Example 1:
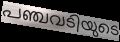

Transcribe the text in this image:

പഞ്ചവടിയുടെ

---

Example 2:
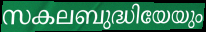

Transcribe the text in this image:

സകലബുദ്ധിയേയും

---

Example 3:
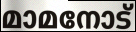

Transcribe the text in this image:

മാമനോട്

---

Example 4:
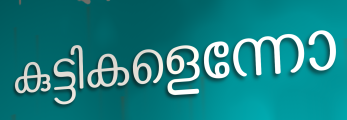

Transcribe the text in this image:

കുട്ടികളെന്നോ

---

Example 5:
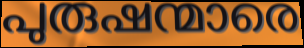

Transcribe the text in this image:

പുരുഷന്മാരെ